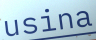
usina